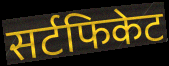
सर्टफिकेट